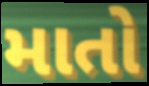
માતો